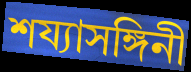
শয্যাসঙ্গিনী